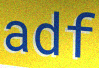
adf